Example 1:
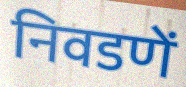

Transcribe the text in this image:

निवडणें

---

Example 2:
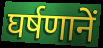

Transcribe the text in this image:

घर्षणानें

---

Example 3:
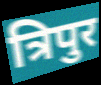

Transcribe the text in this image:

त्रिपुर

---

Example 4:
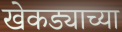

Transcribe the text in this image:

खेकड्याच्या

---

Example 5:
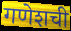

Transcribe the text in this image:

गणेशची